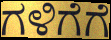
ಗಳಿಗೆಗೆ